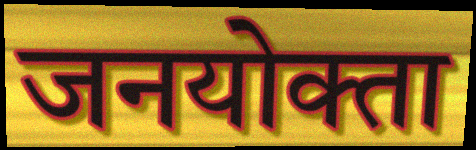
जनयोक्ता